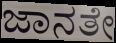
ಜಾನತೇ